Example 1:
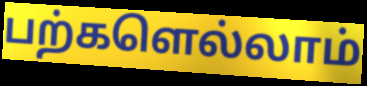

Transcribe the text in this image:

பற்களெல்லாம்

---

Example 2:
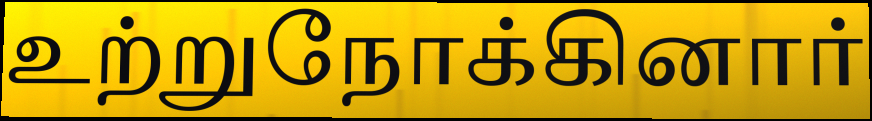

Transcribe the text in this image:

உற்றுநோக்கினார்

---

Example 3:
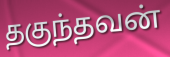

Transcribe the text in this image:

தகுந்தவன்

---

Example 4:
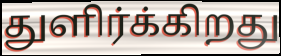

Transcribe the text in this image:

துளிர்க்கிறது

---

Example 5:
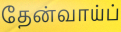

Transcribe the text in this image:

தேன்வாய்ப்